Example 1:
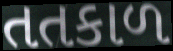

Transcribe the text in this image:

તતકાળ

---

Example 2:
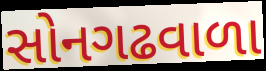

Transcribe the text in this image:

સોનગઢવાળા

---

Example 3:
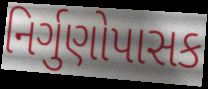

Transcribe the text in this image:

નિર્ગુણોપાસક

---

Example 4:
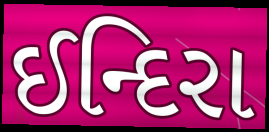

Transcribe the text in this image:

ઈન્દિરા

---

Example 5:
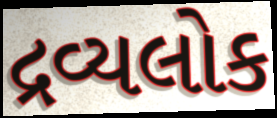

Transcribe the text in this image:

દ્રવ્યલોક